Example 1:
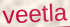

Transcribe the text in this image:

veetla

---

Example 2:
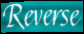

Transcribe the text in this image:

Reverse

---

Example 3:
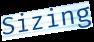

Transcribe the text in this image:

Sizing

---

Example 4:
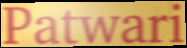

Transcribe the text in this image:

Patwari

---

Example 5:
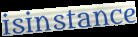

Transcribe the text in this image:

isinstance